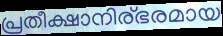
പ്രതീക്ഷാനിര്ഭരമായ